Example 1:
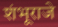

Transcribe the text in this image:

शंभूराजे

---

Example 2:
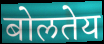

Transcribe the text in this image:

बोलतेय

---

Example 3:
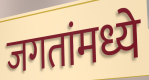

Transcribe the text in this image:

जगतांमध्ये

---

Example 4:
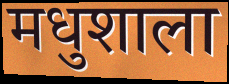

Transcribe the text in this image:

मधुशाला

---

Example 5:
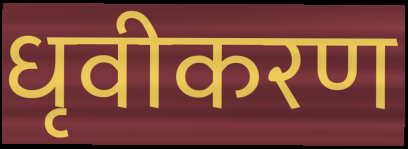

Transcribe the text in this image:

धृवीकरण